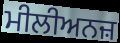
ਮੀਲੀਅਨਜ਼